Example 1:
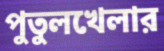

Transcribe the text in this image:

পুতুলখেলার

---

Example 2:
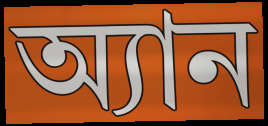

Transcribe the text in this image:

অ্যান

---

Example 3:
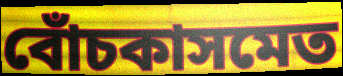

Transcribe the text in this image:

বোঁচকাসমেত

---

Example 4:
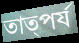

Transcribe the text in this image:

তাত্পর্য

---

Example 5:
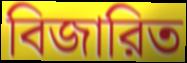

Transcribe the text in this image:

বিজারিত